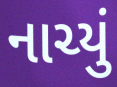
નાચ્યું